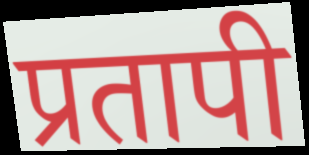
प्रतापी